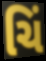
ચિં